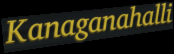
Kanaganahalli